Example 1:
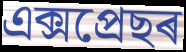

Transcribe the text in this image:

এক্সপ্ৰেছৰ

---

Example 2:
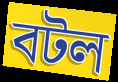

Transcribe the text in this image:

বটল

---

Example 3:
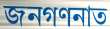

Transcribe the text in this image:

জনগণনাত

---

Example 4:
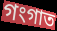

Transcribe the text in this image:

গংগাত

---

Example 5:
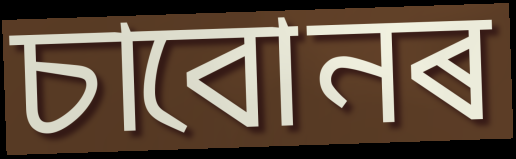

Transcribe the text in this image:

চাবোনৰ